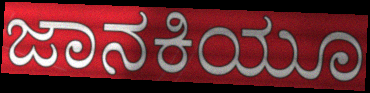
ಜಾನಕಿಯೂ